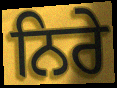
ਨਿਰੇ